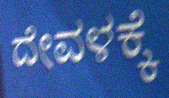
ದೇವಳಕ್ಕೆ